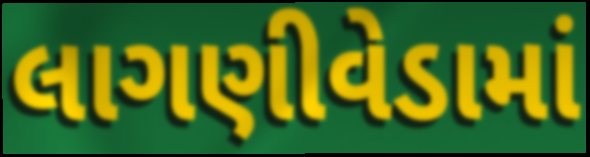
લાગણીવેડામાં